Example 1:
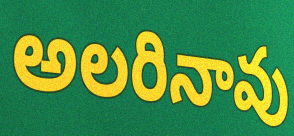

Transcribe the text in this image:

అలరినావు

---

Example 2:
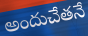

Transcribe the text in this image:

అందుచేతనే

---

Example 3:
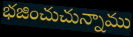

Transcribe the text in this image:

భజించుచున్నాము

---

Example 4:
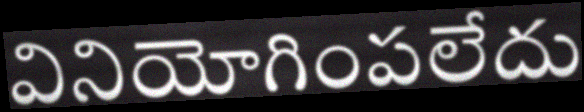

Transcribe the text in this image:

వినియోగింపలేదు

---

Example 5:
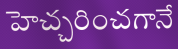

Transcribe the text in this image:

హెచ్చరించగానే